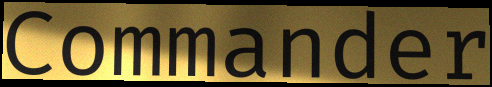
Commander